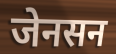
जेनसन